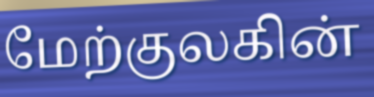
மேற்குலகின்